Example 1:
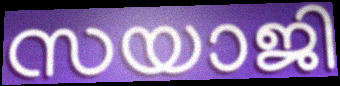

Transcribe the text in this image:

സയാജി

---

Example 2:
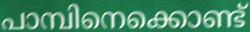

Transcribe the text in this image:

പാമ്പിനെക്കൊണ്ട്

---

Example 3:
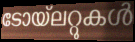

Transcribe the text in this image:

ടോയ്‌ലറ്റുകൾ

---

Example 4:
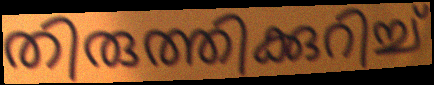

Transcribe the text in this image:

തിരുത്തിക്കുറിച്ച്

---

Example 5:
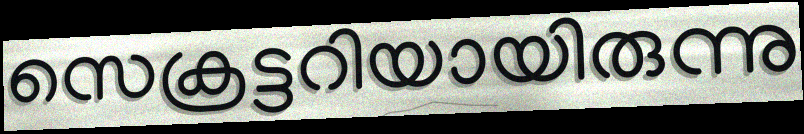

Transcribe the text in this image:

സെക്രട്ടറിയായിരുന്നു